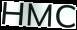
HMC